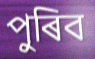
পুৰিব